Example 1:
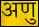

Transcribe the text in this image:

अणु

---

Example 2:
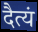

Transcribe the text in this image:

दैत्यं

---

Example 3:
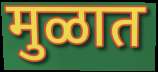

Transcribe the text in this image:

मुळात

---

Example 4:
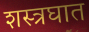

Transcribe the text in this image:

शस्त्रघात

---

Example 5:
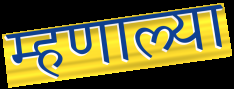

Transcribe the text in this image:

म्हणाल्या